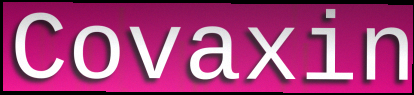
Covaxin